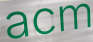
acm